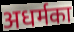
अधर्मका